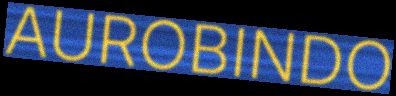
AUROBINDO